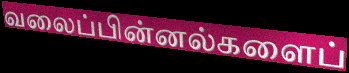
வலைப்பின்னல்களைப்